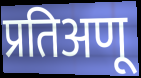
प्रतिअणू